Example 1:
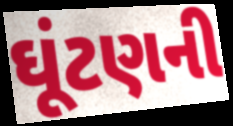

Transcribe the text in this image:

ઘૂંટણની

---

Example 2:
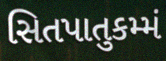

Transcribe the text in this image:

સિતપાતુકમ્મં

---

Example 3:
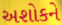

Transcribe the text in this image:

અશોકને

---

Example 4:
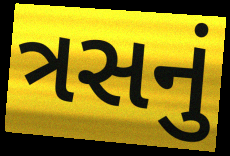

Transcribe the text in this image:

ત્રસનું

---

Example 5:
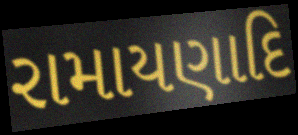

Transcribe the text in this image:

રામાયણાદિ